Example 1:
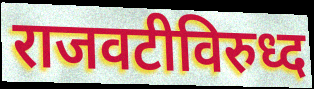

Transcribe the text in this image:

राजवटीविरुध्द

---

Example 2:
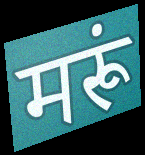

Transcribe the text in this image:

मरूं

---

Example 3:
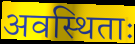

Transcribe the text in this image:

अवस्थिताः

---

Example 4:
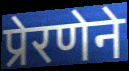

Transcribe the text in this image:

प्रेरणेने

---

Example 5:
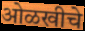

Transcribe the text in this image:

ओळखीचे